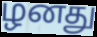
ழனது